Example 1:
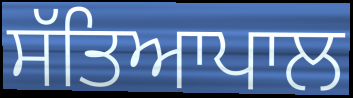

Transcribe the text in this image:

ਸੱਤਿਆਪਾਲ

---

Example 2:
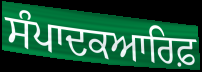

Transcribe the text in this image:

ਸੰਪਾਦਕਆਰਿਫ਼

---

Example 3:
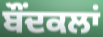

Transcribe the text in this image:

ਬੌਂਦਕਲਾਂ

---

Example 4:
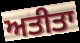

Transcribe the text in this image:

ਅਤੀਤਾ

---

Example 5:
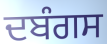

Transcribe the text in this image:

ਦਬੰਗਸ